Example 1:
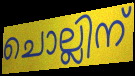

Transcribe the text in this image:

ചൊല്ലിന്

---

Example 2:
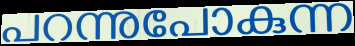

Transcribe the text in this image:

പറന്നുപോകുന്ന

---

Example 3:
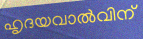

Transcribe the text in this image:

ഹൃദയവാൽവിന്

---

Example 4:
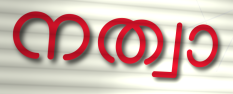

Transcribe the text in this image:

നത്വാ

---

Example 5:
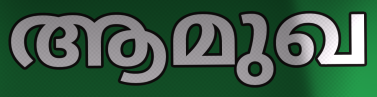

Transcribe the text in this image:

ആമുഖ